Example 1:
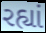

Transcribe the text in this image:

રહ્યાં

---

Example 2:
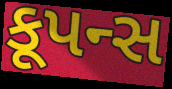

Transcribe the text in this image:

કૂપન્સ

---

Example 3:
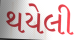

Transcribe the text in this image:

થયેલી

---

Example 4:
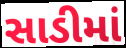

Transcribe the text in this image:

સાડીમાં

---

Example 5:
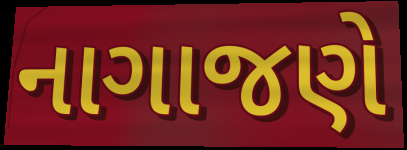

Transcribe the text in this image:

નાગાજણે